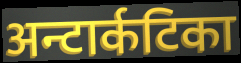
अन्टार्कटिका